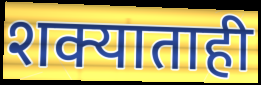
शक्याताही